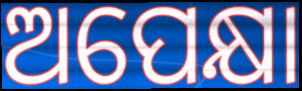
ଅପେକ୍ଷା